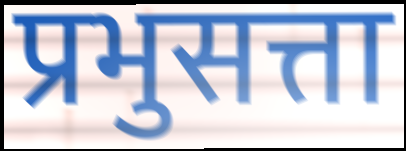
प्रभुसत्ता